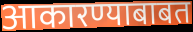
आकारण्याबाबत